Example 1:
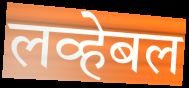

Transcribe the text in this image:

लव्हेबल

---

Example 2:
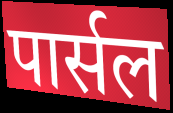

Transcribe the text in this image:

पार्सल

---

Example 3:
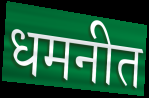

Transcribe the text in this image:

धमनीत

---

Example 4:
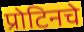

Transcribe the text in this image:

प्रोटिनचे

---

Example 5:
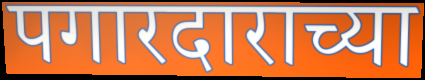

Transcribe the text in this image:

पगारदाराच्या